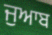
ਜੁਆਬ